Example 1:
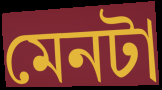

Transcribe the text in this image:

মেনটা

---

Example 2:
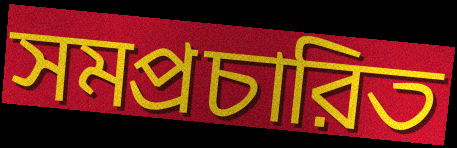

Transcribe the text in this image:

সমপ্রচারিত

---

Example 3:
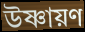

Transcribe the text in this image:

উষ্ণায়ণ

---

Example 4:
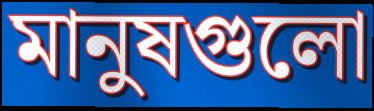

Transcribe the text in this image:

মানুষগুলো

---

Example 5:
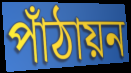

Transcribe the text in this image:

পাঁঠায়ন